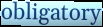
obligatory